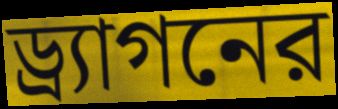
ড্র্যাগনের